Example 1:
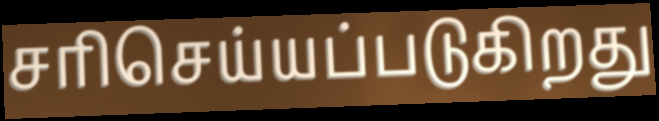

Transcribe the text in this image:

சரிசெய்யப்படுகிறது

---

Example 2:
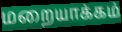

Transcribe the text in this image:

மறையாக்கம்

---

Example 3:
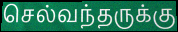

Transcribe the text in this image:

செல்வந்தருக்கு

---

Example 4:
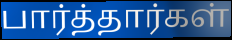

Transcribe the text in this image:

பார்த்தார்கள்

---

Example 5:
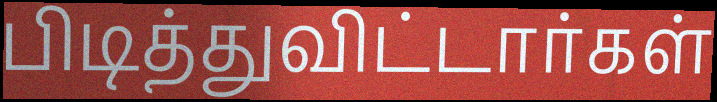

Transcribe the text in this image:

பிடித்துவிட்டார்கள்